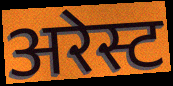
अरेस्ट